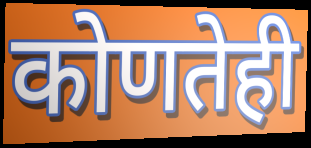
कोणतेही